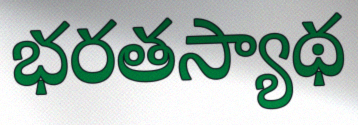
భరతస్యాథ